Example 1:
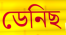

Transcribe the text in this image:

ডেনিছ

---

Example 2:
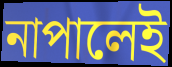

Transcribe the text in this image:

নাপালেই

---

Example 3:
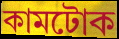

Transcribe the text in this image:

কামটোক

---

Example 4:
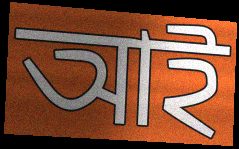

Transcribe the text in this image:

আই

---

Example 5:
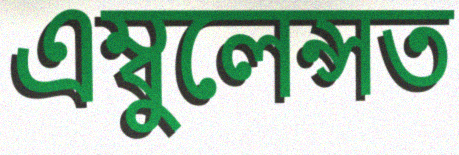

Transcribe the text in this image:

এম্বুলেন্সত